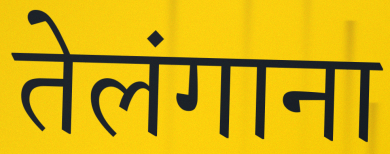
तेलंगाना